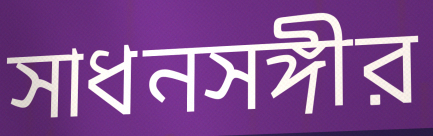
সাধনসঙ্গীর